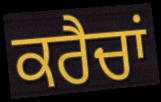
ਕਰੈਚਾਂ